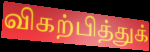
விகற்பித்துக்